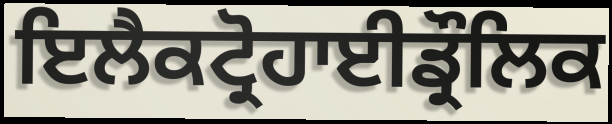
ਇਲੈਕਟ੍ਰੋਹਾਈਡ੍ਰੌਲਿਕ